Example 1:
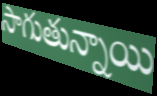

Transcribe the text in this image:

సాగుతున్నాయి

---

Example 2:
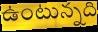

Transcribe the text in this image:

ఉంటున్నది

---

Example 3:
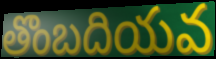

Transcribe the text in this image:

తొంబదియవ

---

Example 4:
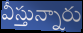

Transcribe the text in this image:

వీస్తున్నారు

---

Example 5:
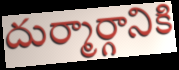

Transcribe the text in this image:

దుర్మార్గానికి